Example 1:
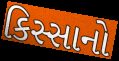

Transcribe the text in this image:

કિસ્સાનો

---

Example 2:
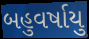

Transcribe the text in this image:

બહુવર્ષાયુ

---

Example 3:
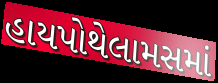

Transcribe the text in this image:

હાયપોથેલામસમાં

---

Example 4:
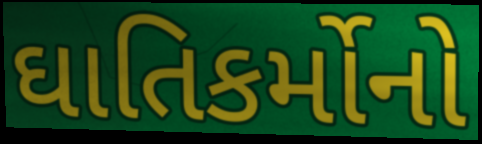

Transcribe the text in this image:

ઘાતિકર્મોનો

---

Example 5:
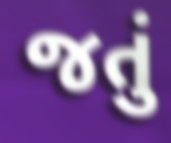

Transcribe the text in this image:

જતું